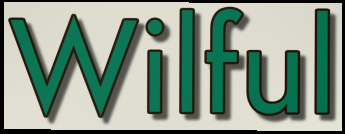
Wilful